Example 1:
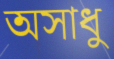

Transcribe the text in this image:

অসাধু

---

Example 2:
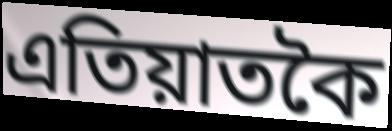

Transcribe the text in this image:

এতিয়াতকৈ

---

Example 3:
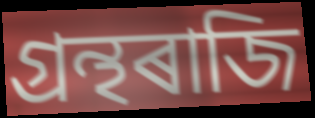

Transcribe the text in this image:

গ্ৰন্থৰাজি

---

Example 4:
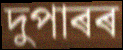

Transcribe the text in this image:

দুপাৰৰ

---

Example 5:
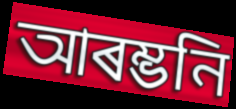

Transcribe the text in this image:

আৰম্ভনি